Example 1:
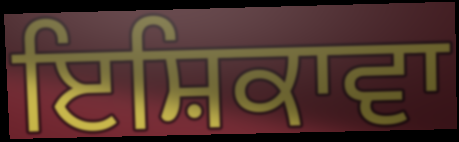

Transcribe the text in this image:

ਇਸ਼ਿਕਾਵਾ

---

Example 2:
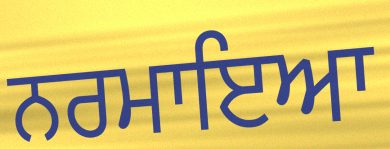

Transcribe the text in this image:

ਨਰਮਾਇਆ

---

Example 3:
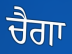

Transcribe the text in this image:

ਚੈਗਾ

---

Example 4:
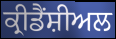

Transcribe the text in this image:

ਕ੍ਰੀਡੈਂਸ਼ੀਅਲ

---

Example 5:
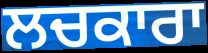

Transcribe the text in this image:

ਲਚਕਾਰਾ